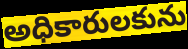
అధికారులకును